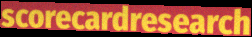
scorecardresearch